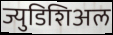
ज्युडिशिअल